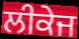
ਲੀਕੇਜ